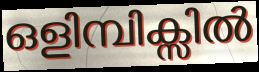
ഒളിമ്പിക്സിൽ